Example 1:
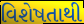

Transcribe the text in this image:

વિશેષતાથી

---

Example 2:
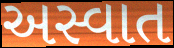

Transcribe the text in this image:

અસ્વાત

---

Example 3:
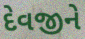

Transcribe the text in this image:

દેવજીને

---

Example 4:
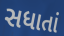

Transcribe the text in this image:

સધાતાં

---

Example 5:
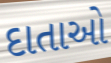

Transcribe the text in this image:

દાતાઓ